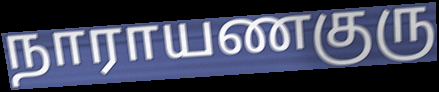
நாராயணகுரு